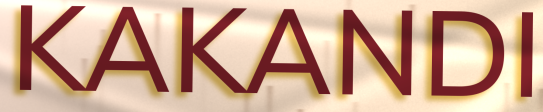
KAKANDI